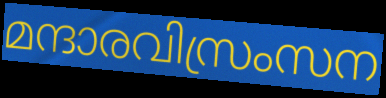
മന്ദാരവിസ്രംസന